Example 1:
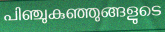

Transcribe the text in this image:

പിഞ്ചുകുഞ്ഞുങ്ങളുടെ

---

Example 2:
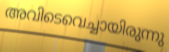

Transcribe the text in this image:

അവിടെവെച്ചായിരുന്നു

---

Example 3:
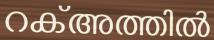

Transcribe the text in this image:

റക്അത്തിൽ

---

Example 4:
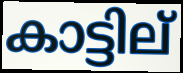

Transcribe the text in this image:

കാട്ടില്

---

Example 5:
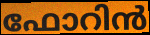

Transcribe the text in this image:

ഫോറിൻ